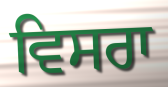
ਵਿਸਰਾ